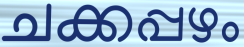
ചക്കപ്പഴം